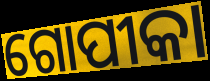
ଗୋପୀକା